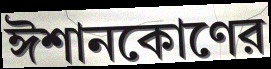
ঈশানকোণের